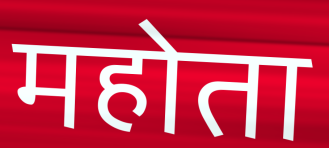
महोता